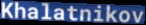
Khalatnikov